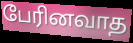
பேரினவாத